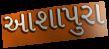
આશાપુરા